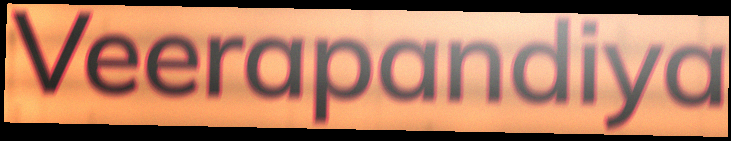
Veerapandiya